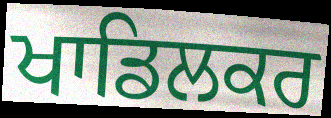
ਖਾਡਿਲਕਰ